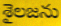
శైలజను